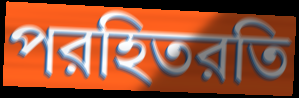
পরহিতরতি